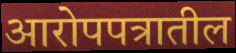
आरोपपत्रातील